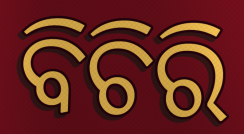
ବିଚିରି